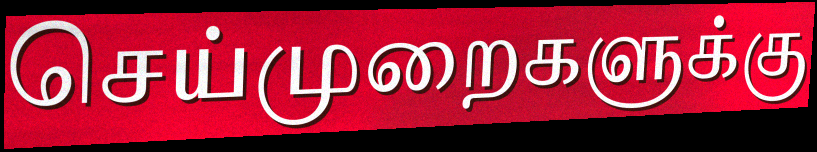
செய்முறைகளுக்கு